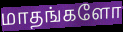
மாதங்களோ